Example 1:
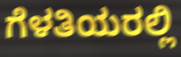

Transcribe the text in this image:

ಗೆಳತಿಯರಲ್ಲಿ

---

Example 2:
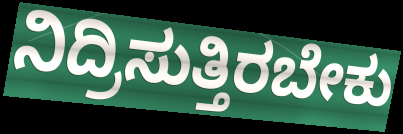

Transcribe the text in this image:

ನಿದ್ರಿಸುತ್ತಿರಬೇಕು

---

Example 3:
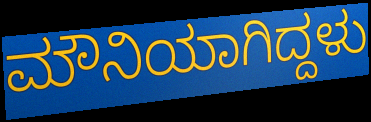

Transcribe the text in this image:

ಮೌನಿಯಾಗಿದ್ದಳು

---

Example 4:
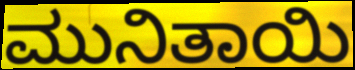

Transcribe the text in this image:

ಮುನಿತಾಯಿ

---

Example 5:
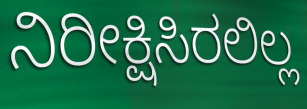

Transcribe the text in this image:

ನಿರೀಕ್ಷಿಸಿರಲಿಲ್ಲ